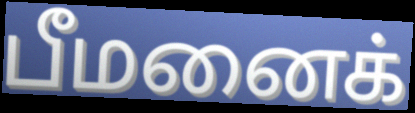
பீமனைக்